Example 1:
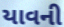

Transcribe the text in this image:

યાવની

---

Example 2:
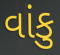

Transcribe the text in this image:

વાંકુ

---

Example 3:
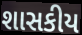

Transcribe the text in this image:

શાસકીય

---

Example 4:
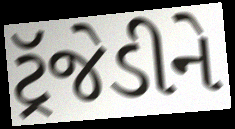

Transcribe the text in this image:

ટ્રૅજેડીને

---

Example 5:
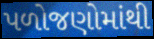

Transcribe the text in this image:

પળોજણોમાંથી